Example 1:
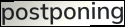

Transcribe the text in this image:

postponing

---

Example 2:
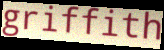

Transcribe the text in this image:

griffith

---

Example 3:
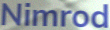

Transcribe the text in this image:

Nimrod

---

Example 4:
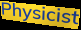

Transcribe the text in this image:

Physicist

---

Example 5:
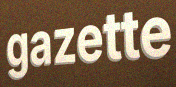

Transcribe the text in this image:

gazette